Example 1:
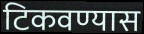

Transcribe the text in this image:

टिकवण्यास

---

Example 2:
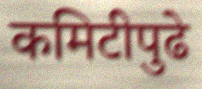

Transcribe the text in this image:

कमिटीपुढे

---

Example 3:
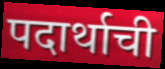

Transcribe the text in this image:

पदार्थाची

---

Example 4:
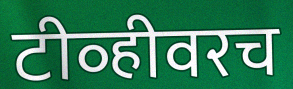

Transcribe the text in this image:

टीव्हीवरच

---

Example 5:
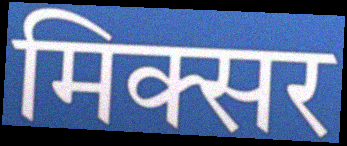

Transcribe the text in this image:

मिक्‍सर